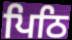
ਪਿਠਿ